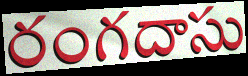
రంగదాసు